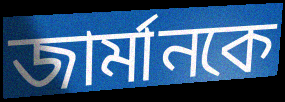
জার্মানকে